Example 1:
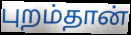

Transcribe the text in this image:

புறம்தான்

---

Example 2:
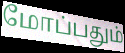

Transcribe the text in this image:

மோப்பதும்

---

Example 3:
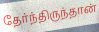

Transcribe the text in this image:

தேர்ந்திருந்தான்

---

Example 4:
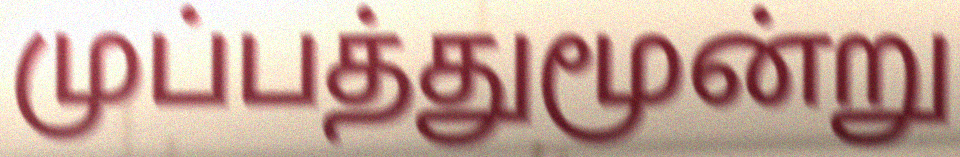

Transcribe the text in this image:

முப்பத்துமூன்று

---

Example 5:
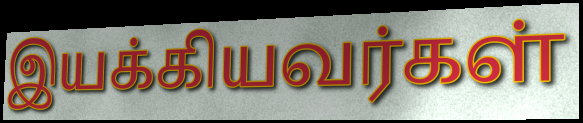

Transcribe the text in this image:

இயக்கியவர்கள்